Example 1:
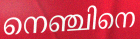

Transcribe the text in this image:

നെഞ്ചിനെ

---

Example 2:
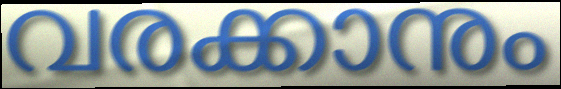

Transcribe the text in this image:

വരക്കാനും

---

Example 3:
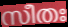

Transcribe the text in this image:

സീതഃ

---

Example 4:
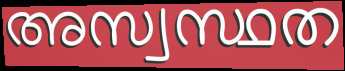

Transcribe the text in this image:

അസ്വസ്ഥത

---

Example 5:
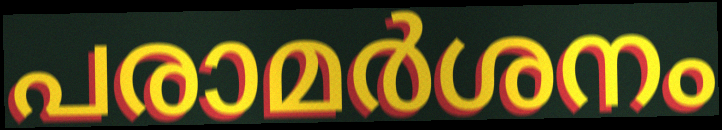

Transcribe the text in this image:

പരാമർശനം